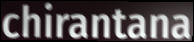
chirantana